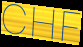
CHF